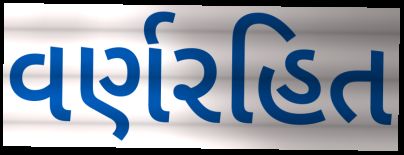
વર્ણરહિત